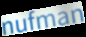
nufman